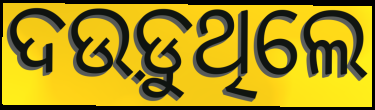
ଦଉଡ଼ୁଥିଲେ